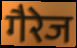
गैरेज